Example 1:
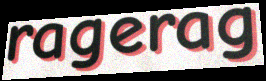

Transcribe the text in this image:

ragerag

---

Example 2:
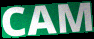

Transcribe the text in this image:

CAM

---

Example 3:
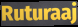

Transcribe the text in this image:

Ruturaaj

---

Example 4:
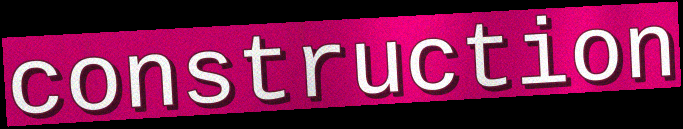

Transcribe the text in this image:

construction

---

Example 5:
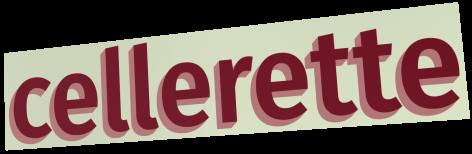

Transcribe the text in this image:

cellerette